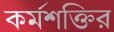
কর্মশক্তির